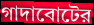
গাদাবোটের